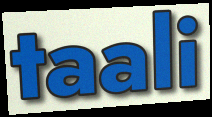
taali